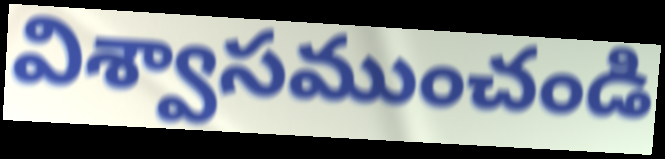
విశ్వాసముంచండి